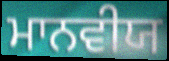
ਮਾਨਵੀਯ